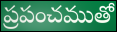
ప్రపంచముతో